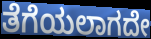
ತೆಗೆಯಲಾಗದೇ